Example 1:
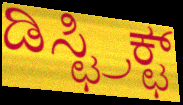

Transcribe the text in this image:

ಡಿಸ್ಟ್ರಿಕ್ಟ್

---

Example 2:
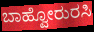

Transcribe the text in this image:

ಬಾಹ್ವೋರುರಸಿ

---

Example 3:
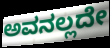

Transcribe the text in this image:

ಅವನಲ್ಲದೇ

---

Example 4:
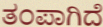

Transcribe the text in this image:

ತಂಪಾಗಿದೆ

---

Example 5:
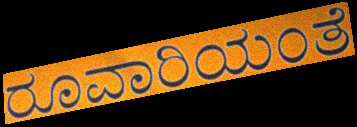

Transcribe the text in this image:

ರೂವಾರಿಯಂತೆ